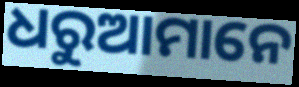
ଧରୁଆମାନେ